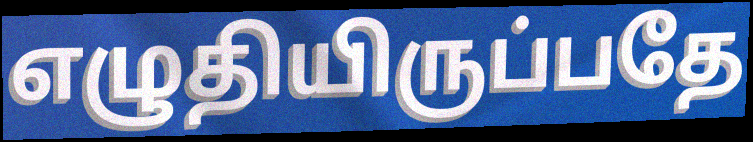
எழுதியிருப்பதே